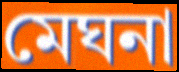
মেঘনা